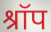
श्रॉप